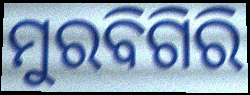
ମୁରବିଗିରି